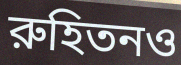
রুহিতনও